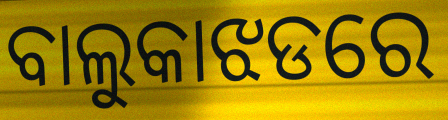
ବାଲୁକାଝଡରେ